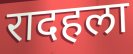
रादहला